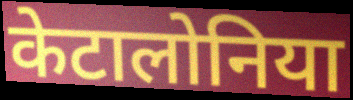
केटालोनिया